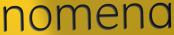
nomena